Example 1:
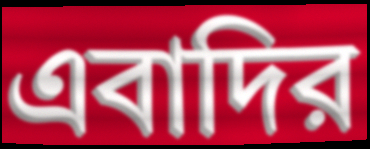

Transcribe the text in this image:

এবাদির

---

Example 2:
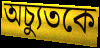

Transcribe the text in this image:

অচ্যুতকে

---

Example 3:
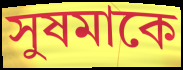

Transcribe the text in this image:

সুষমাকে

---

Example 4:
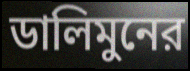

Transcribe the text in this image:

ডালিমুনের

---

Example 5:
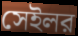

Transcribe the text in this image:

সেইলর